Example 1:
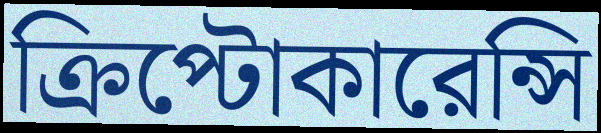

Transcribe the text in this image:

ক্রিপ্টোকারেন্সি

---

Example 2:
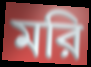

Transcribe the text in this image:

মরি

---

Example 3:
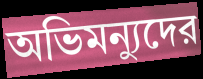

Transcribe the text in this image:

অভিমন্যুদের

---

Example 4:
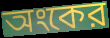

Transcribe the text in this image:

অংকের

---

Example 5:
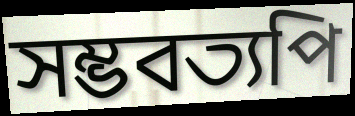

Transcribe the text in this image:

সম্ভবত্যপি